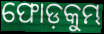
ଫୋଡ଼କୁମ୍ଭ